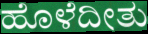
ಹೊಳೆದೀತು